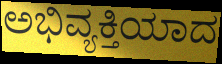
ಅಭಿವ್ಯಕ್ತಿಯಾದ